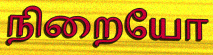
நிறையோ